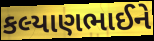
કલ્યાણભાઈને